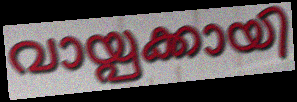
വായ്പക്കായി